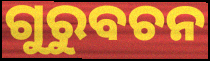
ଗୁରୁବଚନ